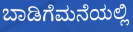
ಬಾಡಿಗೆಮನೆಯಲ್ಲಿ